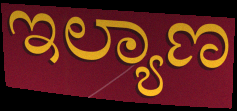
ಇಲ್ಯಾಣ